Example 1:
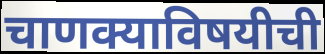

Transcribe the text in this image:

चाणक्याविषयीची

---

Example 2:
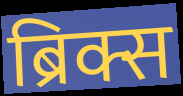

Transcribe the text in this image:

ब्रिक्स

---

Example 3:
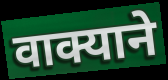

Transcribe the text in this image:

वाक्याने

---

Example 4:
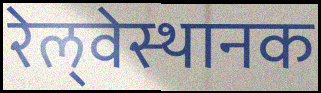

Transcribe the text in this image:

रेल्वेस्थानक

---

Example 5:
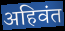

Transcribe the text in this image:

अहिवंत